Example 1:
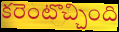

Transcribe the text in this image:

కరెంటొచ్చింది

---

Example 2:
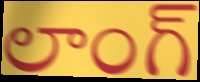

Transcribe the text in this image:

లాంగ్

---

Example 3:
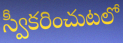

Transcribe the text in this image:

స్వీకరించుటలో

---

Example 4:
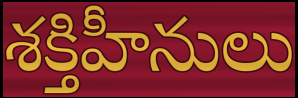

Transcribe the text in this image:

శక్తిహీనులు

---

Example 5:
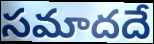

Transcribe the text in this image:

సమాదదే